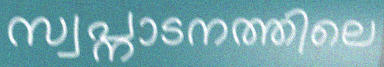
സ്വപ്നാടനത്തിലെ